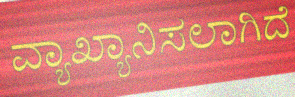
ವ್ಯಾಖ್ಯಾನಿಸಲಾಗಿದೆ